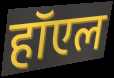
हॉएल